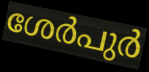
ശേർപുർ